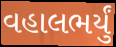
વહાલભર્યું